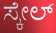
ಸ್ಕೇಲ್